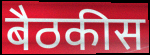
बैठकीस